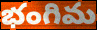
భంగిమ